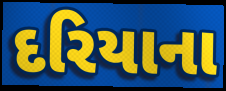
દરિયાના